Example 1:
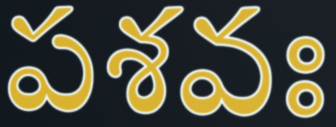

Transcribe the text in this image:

పశవః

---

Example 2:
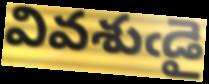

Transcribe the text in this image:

వివశుఁడై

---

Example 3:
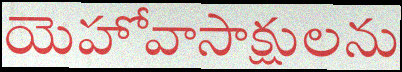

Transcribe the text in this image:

యెహోవాసాక్షులను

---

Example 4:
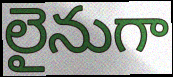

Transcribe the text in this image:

లైనుగా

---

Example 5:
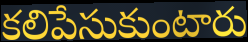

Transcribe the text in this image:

కలిపేసుకుంటారు